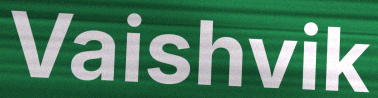
Vaishvik